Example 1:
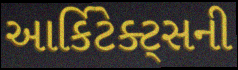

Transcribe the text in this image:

આર્કિટેક્ટ્સની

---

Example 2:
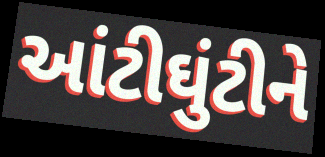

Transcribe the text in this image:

આંટીઘુંટીને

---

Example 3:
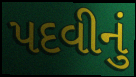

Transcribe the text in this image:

પદવીનું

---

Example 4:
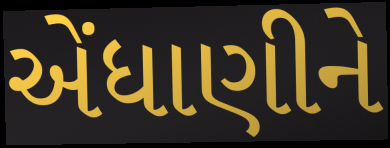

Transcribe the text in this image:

એંધાણીને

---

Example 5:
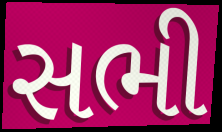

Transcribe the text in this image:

સભી